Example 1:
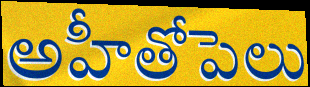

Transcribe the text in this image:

అహీతోపెలు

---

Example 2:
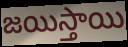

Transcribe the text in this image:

జయిస్తాయి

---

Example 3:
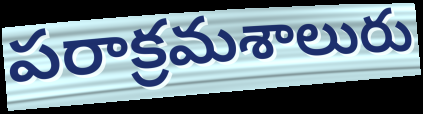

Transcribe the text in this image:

పరాక్రమశాలురు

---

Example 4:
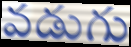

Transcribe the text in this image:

వడుగు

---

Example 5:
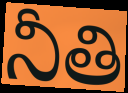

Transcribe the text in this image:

నీతి